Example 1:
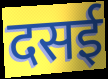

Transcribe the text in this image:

दसई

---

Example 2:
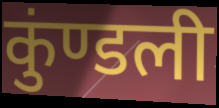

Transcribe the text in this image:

कुंण्डली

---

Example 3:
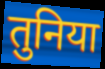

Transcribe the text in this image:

तुनिया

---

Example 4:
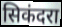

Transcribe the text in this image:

सिकंदरा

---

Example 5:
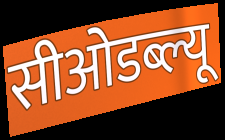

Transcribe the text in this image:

सीओडब्ल्यू